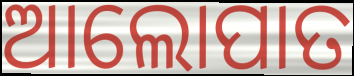
ଆଲୋପାତ